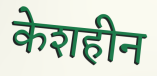
केशहीन